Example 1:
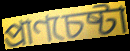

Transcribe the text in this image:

প্রাণচেষ্টা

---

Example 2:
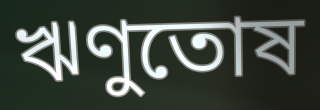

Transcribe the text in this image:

ঋণুতোষ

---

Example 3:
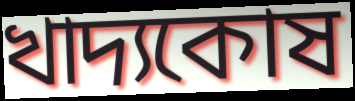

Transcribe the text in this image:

খাদ্যকোষ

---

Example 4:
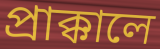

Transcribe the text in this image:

প্রাক্কালে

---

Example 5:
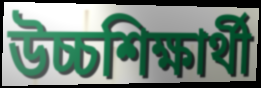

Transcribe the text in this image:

উচ্চশিক্ষার্থী